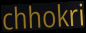
chhokri